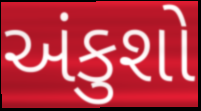
અંકુશો